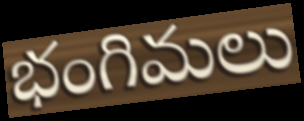
భంగిమలు